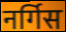
नर्गिस